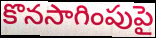
కొనసాగింపుపై